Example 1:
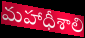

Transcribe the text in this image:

మహాధీశాలి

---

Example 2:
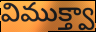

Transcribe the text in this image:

విముక్త్వా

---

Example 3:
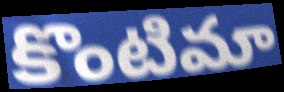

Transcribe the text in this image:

కొంటిమా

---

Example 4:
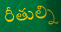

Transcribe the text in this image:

రీతుల్ని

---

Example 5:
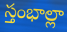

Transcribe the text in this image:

స్తంభాల్లా